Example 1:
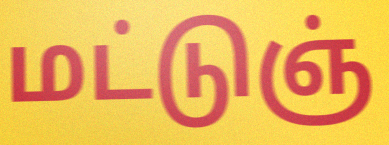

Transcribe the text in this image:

மட்டுஞ்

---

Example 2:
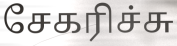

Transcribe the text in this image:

சேகரிச்சு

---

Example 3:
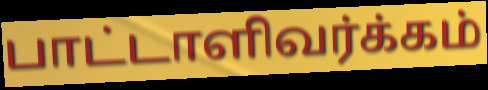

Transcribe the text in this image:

பாட்டாளிவர்க்கம்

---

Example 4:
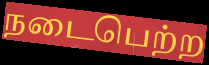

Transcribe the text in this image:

நடைபெற்ற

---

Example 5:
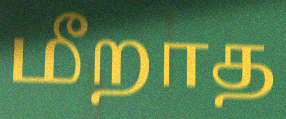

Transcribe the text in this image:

மீறாத